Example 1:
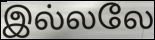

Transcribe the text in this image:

இல்லலே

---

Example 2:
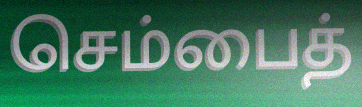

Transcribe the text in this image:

செம்பைத்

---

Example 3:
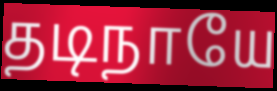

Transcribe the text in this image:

தடிநாயே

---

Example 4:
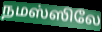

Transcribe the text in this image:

நமஸ்ஸிலே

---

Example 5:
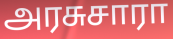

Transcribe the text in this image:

அரசுசாரா